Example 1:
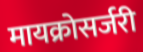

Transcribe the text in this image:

मायक्रोसर्जरी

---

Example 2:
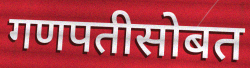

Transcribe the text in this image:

गणपतीसोबत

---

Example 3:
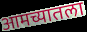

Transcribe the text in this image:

आमच्यातला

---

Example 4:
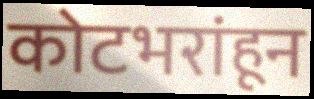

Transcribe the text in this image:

कोटभरांहून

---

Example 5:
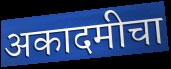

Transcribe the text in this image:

अकादमीचा